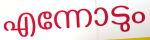
എന്നോടും